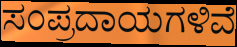
ಸಂಪ್ರದಾಯಗಳಿವೆ